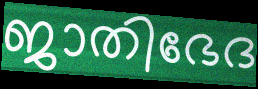
ജാതിഭേദ